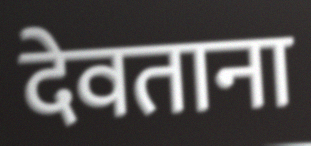
देवताना